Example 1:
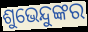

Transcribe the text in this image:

ଶୁଭେନ୍ଦୁଙ୍କର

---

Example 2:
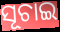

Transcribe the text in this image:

ସୂଚାଇ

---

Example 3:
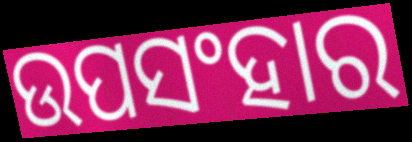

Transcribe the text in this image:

ଉପସଂହାର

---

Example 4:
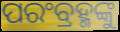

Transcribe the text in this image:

ପରଂବ୍ରହ୍ମଙ୍କୁ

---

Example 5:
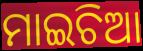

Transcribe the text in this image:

ମାଇଚିଆ